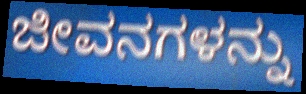
ಜೀವನಗಳನ್ನು